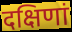
दक्षिणां